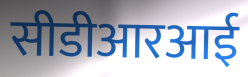
सीडीआरआई